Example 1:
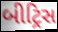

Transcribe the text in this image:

બીટ્રિસ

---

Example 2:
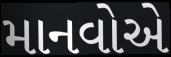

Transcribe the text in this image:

માનવોએ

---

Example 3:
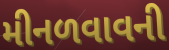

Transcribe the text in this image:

મીનળવાવની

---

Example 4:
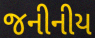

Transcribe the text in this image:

જનીનીય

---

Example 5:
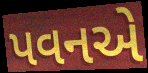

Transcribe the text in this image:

પવનએ